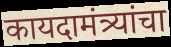
कायदामंत्र्यांचा